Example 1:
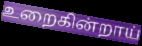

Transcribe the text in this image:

உறைகின்றாய்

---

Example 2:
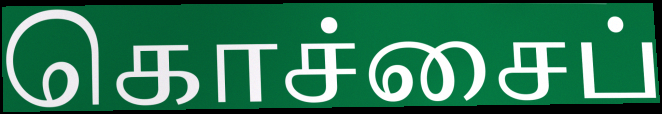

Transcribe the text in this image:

கொச்சைப்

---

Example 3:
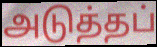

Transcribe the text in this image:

அடுத்தப்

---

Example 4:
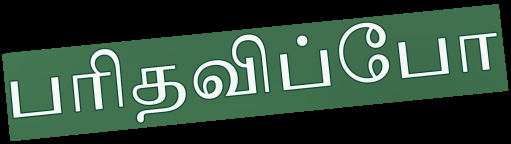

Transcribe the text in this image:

பரிதவிப்போ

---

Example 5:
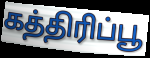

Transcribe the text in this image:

கத்திரிப்பூ